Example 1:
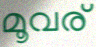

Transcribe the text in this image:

മൂവര്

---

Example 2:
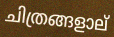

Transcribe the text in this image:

ചിത്രങ്ങളാല്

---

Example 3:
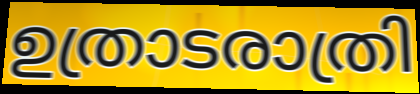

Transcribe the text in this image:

ഉത്രാടരാത്രി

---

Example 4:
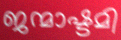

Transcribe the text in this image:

ജന്മാഷ്ടമി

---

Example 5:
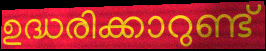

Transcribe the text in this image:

ഉദ്ധരിക്കാറുണ്ട്